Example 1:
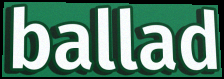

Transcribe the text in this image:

ballad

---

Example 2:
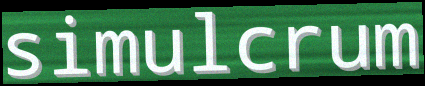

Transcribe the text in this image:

simulcrum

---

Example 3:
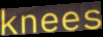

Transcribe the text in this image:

knees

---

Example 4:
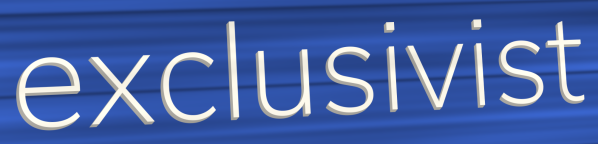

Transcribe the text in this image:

exclusivist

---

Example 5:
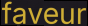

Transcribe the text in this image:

faveur